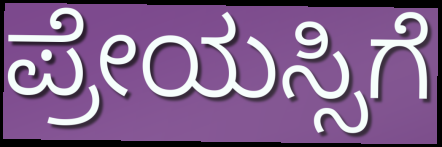
ಪ್ರೇಯಸ್ಸಿಗೆ